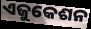
ଏଜୁକେଶନ